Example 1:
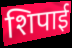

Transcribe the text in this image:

शिपाई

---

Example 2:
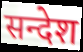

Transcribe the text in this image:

सन्देश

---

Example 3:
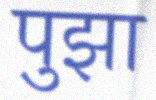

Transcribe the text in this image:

पुझा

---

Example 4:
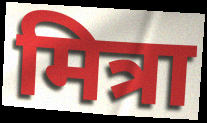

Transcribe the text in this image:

मित्रा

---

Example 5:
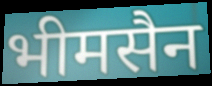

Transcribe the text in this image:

भीमसैन